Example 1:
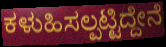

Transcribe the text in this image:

ಕಳುಹಿಸಲ್ಪಟ್ಟಿದ್ದೇನೆ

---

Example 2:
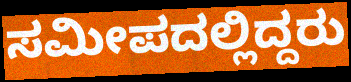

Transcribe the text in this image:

ಸಮೀಪದಲ್ಲಿದ್ದರು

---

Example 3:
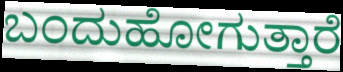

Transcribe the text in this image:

ಬಂದುಹೋಗುತ್ತಾರೆ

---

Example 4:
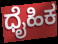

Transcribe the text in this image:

ಧೈಹಿಕ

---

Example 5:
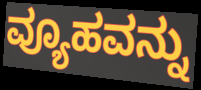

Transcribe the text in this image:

ವ್ಯೂಹವನ್ನು